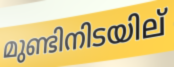
മുണ്ടിനിടയില്